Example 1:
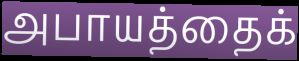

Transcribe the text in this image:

அபாயத்தைக்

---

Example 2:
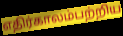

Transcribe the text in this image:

எதிர்காலம்பற்றிய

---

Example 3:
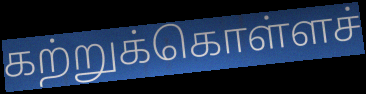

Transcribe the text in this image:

கற்றுக்கொள்ளச்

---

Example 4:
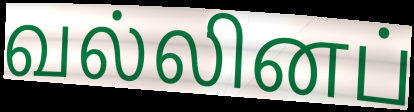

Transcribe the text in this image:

வல்லினப்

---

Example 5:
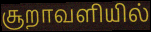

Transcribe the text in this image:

சூறாவளியில்